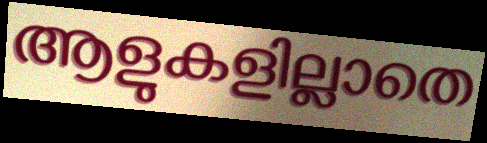
ആളുകളില്ലാതെ